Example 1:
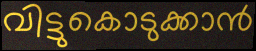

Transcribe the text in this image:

വിട്ടുകൊടുക്കാൻ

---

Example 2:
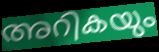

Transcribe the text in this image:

അറികയും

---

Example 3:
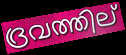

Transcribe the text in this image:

ദ്രവത്തില്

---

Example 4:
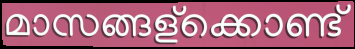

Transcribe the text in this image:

മാസങ്ങള്ക്കൊണ്ട്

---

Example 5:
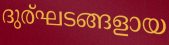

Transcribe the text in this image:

ദുര്ഘടങ്ങളായ